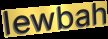
Iewbah